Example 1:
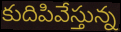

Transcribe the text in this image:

కుదిపివేస్తున్న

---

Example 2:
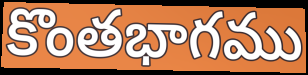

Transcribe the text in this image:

కొంతభాగము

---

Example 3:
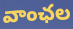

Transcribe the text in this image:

వాంఛల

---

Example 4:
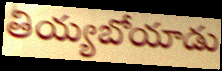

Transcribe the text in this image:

తియ్యబోయాడు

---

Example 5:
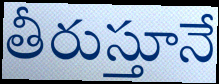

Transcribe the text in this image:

తీరుస్తూనే